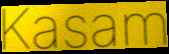
Kasam